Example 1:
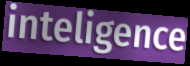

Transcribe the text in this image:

inteligence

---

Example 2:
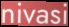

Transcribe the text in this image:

nivasi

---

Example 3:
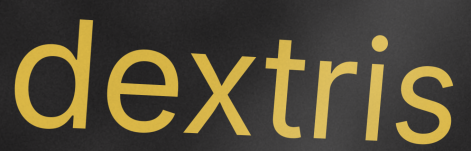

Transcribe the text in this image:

dextris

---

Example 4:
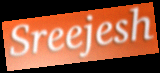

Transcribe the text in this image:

Sreejesh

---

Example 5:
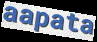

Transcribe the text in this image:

aapata